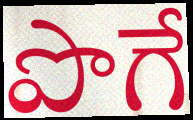
పొగే